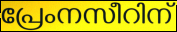
പ്രേംനസീറിന്